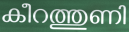
കീറത്തുണി